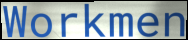
Workmen